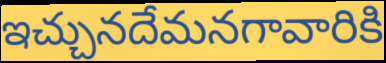
ఇచ్చునదేమనగావారికి